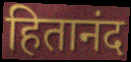
हितानंद